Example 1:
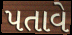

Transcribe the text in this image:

પતાવે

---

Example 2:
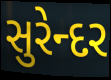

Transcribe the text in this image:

સુરેન્દર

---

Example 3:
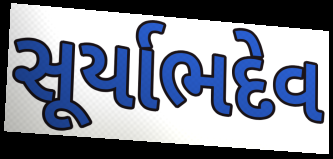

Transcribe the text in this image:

સૂર્યાભદેવ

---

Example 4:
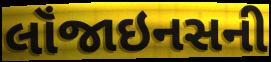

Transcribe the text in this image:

લૉંજાઇનસની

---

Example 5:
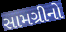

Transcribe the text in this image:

સામગ્રીનો